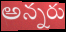
అన్నరు